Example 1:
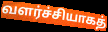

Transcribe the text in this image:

வளர்ச்சியாகத்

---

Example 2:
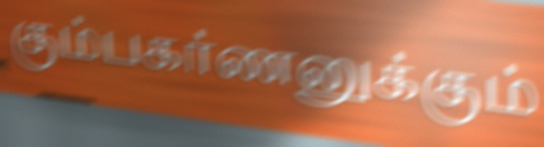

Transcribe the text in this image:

கும்பகர்ணனுக்கும்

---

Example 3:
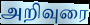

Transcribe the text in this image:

அறிவுரை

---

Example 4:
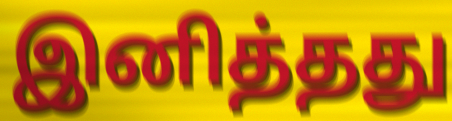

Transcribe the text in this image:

இனித்தது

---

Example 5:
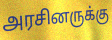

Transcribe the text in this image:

அரசினருக்கு